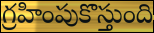
గ్రహింపుకొస్తుంది